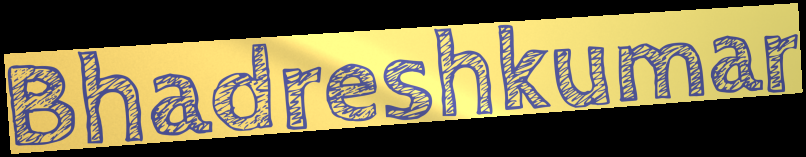
Bhadreshkumar